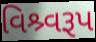
વિશ્ર્વરૂપ